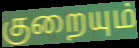
குறையும்